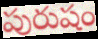
పురుషం